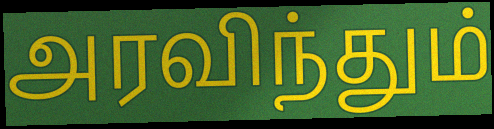
அரவிந்தும்